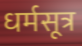
धर्मसूत्र